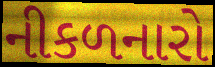
નીકળનારો